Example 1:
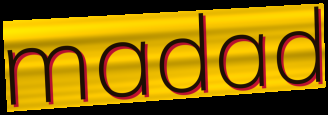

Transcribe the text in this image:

madad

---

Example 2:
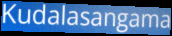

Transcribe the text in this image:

Kudalasangama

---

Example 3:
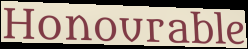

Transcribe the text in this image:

Honourable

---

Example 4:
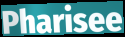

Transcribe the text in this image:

Pharisee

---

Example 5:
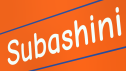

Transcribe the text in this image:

Subashini